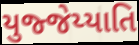
યુજ્જેય્યાતિ